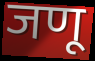
जणू